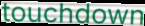
touchdown